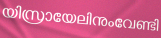
യിസ്രായേലിനുംവേണ്ടി